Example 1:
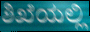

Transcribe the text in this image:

ಶಿಖೆಯಲ್ಲಿ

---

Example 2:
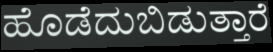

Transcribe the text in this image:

ಹೊಡೆದುಬಿಡುತ್ತಾರೆ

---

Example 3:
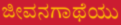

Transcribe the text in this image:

ಜೀವನಗಾಥೆಯು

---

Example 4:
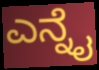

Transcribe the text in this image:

ಎನ್ನೈ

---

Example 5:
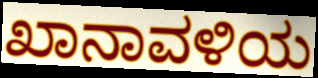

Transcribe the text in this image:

ಖಾನಾವಳಿಯ